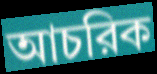
আচরিক